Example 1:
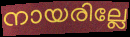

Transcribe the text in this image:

നായരില്ലേ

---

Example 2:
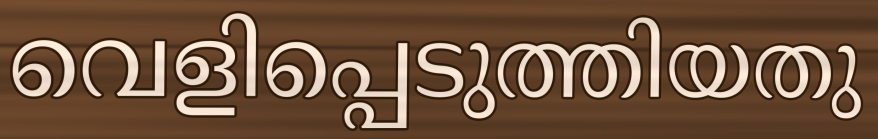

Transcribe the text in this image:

വെളിപ്പെടുത്തിയതു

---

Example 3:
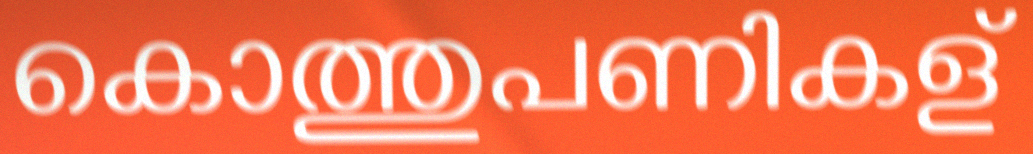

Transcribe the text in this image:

കൊത്തുപണികള്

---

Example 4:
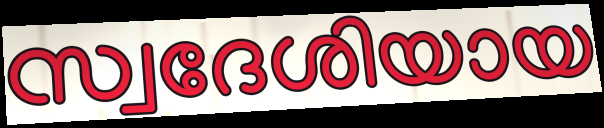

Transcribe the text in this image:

സ്വദേശിയായ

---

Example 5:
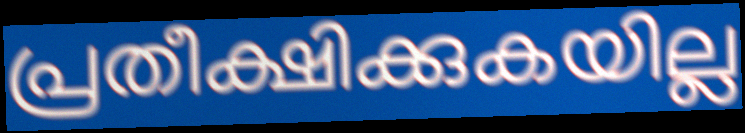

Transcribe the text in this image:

പ്രതീക്ഷിക്കുകയില്ല